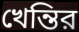
খেন্তির